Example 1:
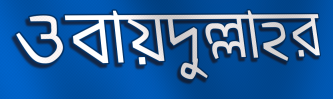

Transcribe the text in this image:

ওবায়দুল্লাহর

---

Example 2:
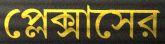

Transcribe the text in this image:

প্লেক্সাসের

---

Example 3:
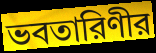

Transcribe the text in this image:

ভবতারিণীর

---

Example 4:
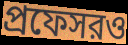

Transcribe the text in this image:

প্রফেসরও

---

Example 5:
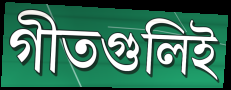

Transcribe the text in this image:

গীতগুলিই